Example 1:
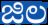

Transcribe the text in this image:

జిల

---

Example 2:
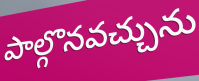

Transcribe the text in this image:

పాల్గొనవచ్చును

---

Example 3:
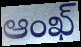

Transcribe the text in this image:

ఆంఖ్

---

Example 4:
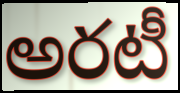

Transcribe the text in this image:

అరటీ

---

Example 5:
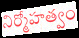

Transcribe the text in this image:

నిర్మోహత్వం